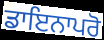
ਡਾਇਨਾਪਰੋ